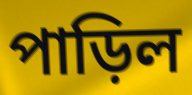
পাড়িল